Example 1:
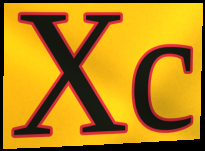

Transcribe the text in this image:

Xc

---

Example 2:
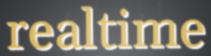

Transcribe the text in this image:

realtime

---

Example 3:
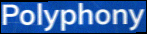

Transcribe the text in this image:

Polyphony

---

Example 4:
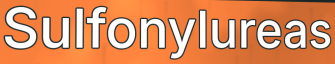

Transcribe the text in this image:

Sulfonylureas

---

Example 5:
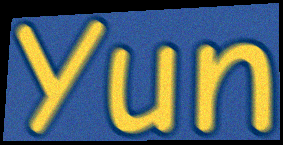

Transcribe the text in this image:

Yun